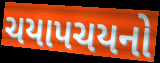
ચયાપચયનો